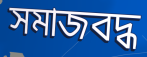
সমাজবদ্ধ